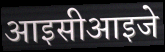
आइसीआइजे